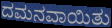
ದಮನವಾಯಿತು